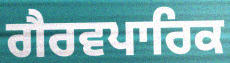
ਗੈਰਵਪਾਰਿਕ